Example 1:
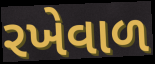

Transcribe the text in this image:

રખેવાળ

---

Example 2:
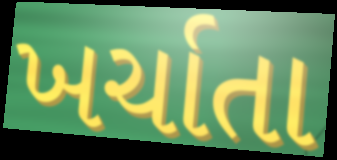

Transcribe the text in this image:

ખર્ચાતા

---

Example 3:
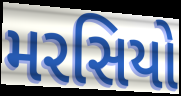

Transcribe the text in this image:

મરસિયો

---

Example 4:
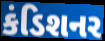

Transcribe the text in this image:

કંડિશનર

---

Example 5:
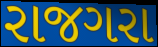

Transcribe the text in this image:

રાજગરા